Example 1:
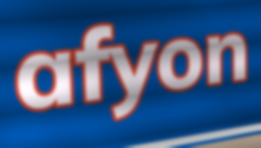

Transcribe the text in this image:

afyon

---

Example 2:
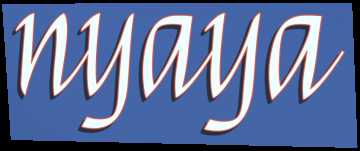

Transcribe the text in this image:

nyaya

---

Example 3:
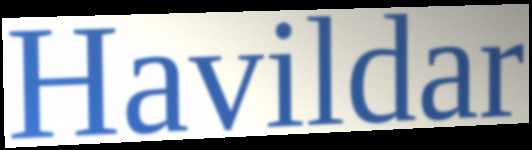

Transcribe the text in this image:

Havildar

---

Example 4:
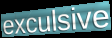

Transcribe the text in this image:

exculsive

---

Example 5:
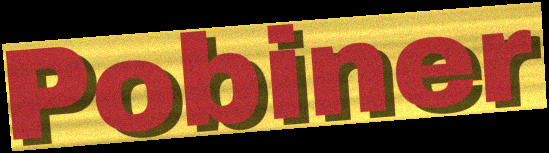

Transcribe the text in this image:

Pobiner